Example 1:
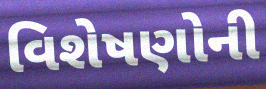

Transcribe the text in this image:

વિશેષણોની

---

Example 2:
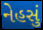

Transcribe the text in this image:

નેહસું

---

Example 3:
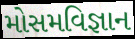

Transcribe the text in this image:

મોસમવિજ્ઞાન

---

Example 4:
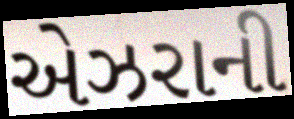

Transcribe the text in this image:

એઝરાની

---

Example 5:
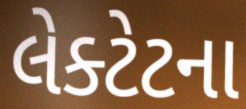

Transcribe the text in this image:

લેક્ટેટના